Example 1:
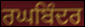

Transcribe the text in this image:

ਰਘਬਿੰਦਰ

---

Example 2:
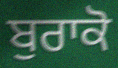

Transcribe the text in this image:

ਬੁਰਾਕੋ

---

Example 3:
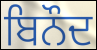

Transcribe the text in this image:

ਬਿਨੌਦ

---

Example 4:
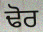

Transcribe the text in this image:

ਢੋਰ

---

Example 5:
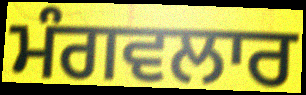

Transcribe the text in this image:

ਮੰਗਵਲਾਰ